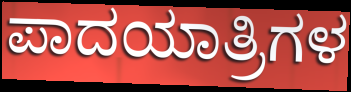
ಪಾದಯಾತ್ರಿಗಳ